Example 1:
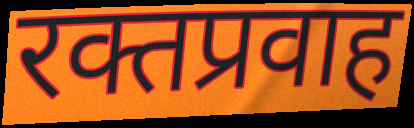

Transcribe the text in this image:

रक्तप्रवाह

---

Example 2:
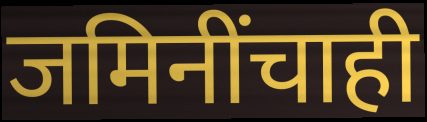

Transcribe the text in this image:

जमिनींचाही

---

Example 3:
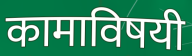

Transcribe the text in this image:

कामाविषयी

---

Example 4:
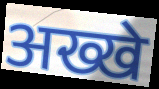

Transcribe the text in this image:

अख्खे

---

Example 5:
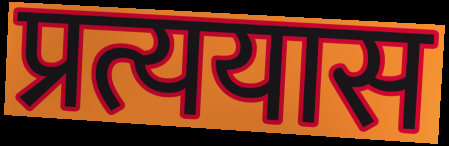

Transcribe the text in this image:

प्रत्ययास